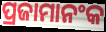
ପ୍ରଜାମାନଂକ